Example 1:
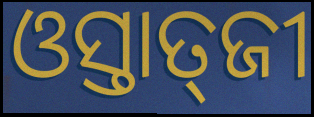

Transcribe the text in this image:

ଓସ୍ତାତ୍‌ଜୀ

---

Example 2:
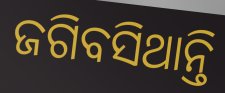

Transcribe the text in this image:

ଜଗିବସିଥାନ୍ତି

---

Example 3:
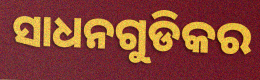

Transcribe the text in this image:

ସାଧନଗୁଡିକର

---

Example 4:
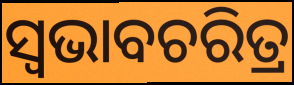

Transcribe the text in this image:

ସ୍ବଭାବଚରିତ୍ର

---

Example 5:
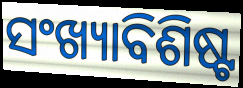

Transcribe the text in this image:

ସଂଖ୍ୟାବିଶିଷ୍ଟ